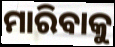
ମାରିବାକୁ